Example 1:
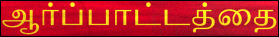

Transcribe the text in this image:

ஆர்ப்பாட்டத்தை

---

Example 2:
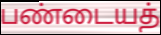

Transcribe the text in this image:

பண்டையத்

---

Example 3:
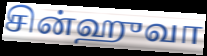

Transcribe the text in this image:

சின்ஹுவா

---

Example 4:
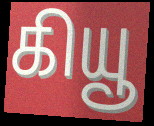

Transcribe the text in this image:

கியூ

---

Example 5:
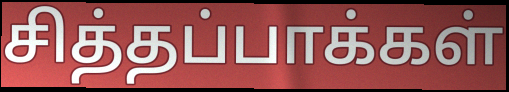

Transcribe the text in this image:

சித்தப்பாக்கள்